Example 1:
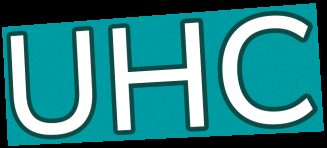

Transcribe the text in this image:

UHC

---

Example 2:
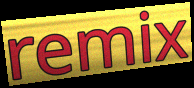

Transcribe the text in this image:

remix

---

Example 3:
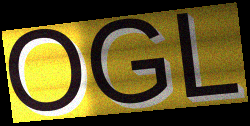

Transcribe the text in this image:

OGL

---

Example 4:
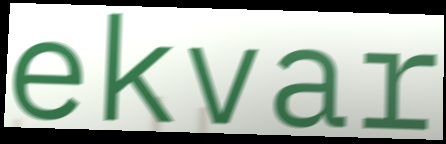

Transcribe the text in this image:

ekvar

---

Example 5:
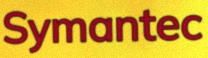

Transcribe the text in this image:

Symantec